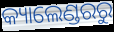
କ୍ୟାଲେଣ୍ଡରରୁ